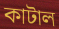
কাটাল